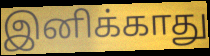
இனிக்காது